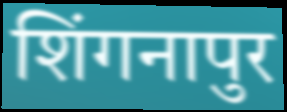
शिंगनापुर